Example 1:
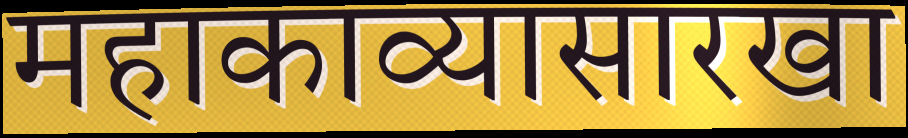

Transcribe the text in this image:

महाकाव्यासारखा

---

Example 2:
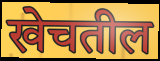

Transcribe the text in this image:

खेचतील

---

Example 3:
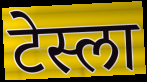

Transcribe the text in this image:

टेस्ला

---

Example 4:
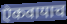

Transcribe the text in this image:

ऐकवायाच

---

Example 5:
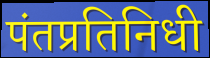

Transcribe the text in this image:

पंतप्रतिनिधी